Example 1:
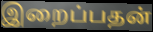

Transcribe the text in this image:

இறைப்பதன்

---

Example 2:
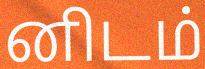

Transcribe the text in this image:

னிடம்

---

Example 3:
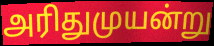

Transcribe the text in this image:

அரிதுமுயன்று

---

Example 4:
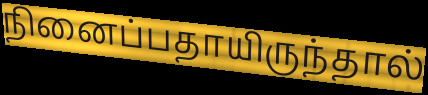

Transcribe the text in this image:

நினைப்பதாயிருந்தால்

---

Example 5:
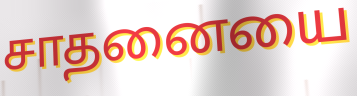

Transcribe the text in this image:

சாதனையை